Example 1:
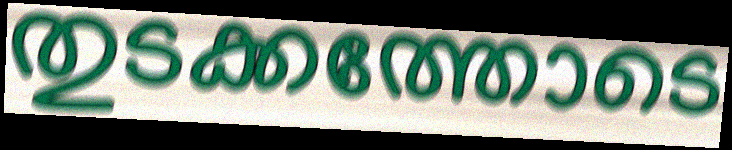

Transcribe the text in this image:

തുടക്കത്തോടെ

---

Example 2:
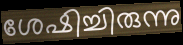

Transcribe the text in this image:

ശേഷിച്ചിരുന്നു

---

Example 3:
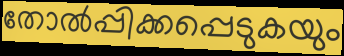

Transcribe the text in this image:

തോൽപ്പിക്കപ്പെടുകയും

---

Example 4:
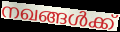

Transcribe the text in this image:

നഖങ്ങൾക്ക്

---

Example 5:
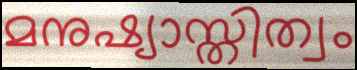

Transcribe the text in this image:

മനുഷ്യാസ്തിത്വം